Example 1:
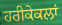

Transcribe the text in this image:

ਹਰੀਕੇਕਲਾਂ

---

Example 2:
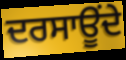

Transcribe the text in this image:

ਦਰਸਾਊਂਦੇ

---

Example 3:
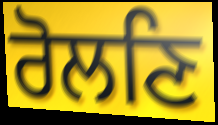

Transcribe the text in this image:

ਰੋਲਣਿ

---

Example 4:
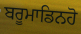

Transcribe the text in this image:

ਬਰੂਮਾਡਿਨਹੋ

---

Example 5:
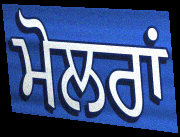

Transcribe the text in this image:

ਮੋਲਰਾਂ